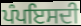
ਪੰਪਇਸਦੀ